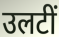
उलटीं